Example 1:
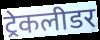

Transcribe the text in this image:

ट्रेकलीडर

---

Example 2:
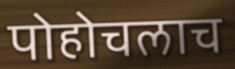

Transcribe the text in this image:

पोहोचलाच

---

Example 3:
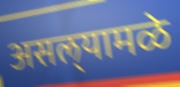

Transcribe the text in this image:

असल्यामळे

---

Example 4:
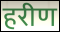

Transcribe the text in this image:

हरीण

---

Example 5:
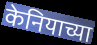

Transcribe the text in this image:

केनियाच्या